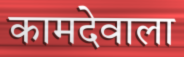
कामदेवाला